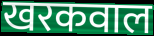
खरकवाल